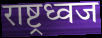
राष्ट्रध्वज